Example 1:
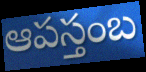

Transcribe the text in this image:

ఆపస్తంబ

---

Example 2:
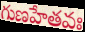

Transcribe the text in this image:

గుణహేతవః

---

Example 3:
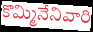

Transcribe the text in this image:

కొమ్మినేనివారి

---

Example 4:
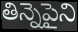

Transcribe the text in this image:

తిన్నెపైని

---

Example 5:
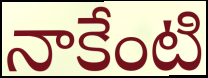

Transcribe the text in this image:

నాకేంటి